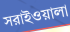
সরাইওয়ালা